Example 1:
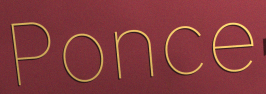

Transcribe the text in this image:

Ponce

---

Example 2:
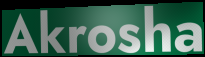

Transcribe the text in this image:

Akrosha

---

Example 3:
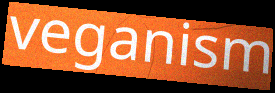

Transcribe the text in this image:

veganism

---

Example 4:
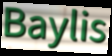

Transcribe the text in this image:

Baylis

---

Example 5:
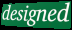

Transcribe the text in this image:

designed